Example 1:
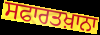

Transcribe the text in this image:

ਸਫਾਰਤਖ਼ਾਨਾ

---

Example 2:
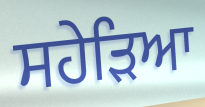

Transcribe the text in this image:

ਸਹੇੜਿਆ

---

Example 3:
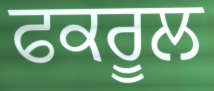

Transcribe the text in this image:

ਫਕਰੂਲ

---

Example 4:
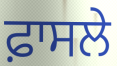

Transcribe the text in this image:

ਫ਼ਾਸਲੇ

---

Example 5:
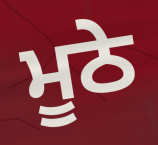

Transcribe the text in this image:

ਮੂਠੇ